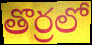
తొర్రలో